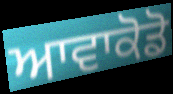
ਆਵਾਕੋਡੋ